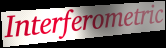
Interferometric